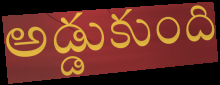
అడ్డుకుంది